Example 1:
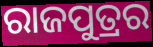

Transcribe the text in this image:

ରାଜପୁତ୍ରର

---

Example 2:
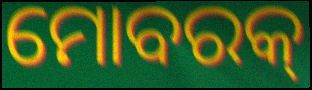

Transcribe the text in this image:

ମୋବରକ୍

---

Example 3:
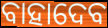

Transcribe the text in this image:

ବାହାଦେବ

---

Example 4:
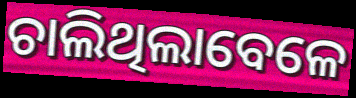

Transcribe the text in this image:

ଚାଲିଥିଲାବେଳେ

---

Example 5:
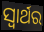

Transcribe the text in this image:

ସ୍ଵାର୍ଥର